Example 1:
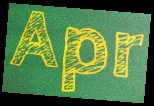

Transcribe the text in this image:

Apr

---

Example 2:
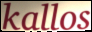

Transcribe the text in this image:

kallos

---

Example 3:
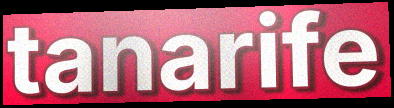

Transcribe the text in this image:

tanarife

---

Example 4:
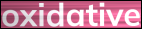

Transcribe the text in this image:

oxidative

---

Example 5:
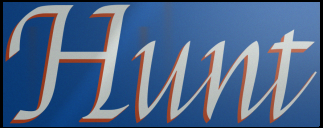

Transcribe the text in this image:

Hunt